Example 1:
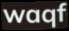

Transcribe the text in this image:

waqf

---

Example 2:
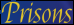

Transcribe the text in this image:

Prisons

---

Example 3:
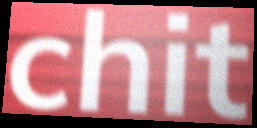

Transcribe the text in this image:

chit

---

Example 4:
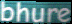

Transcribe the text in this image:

bhure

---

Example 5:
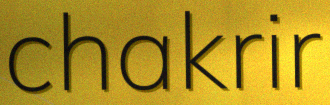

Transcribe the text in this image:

chakrir